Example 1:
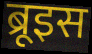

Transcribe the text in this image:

ब्रूइस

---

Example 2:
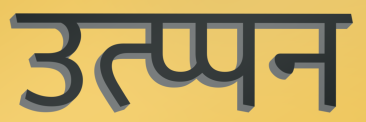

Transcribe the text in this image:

उत्प्पन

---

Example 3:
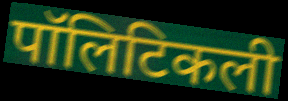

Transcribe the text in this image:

पॉलिटिकली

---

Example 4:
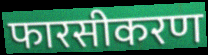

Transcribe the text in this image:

फारसीकरण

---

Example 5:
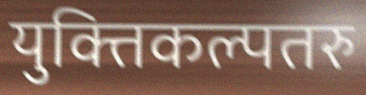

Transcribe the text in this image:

युक्तिकल्पतरु